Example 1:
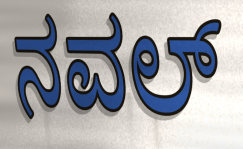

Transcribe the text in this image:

ನವಲ್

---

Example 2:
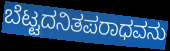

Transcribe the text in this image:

ಬೆಟ್ಟದನಿತಪರಾಧವನು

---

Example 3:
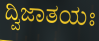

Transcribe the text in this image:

ದ್ವಿಜಾತಯಃ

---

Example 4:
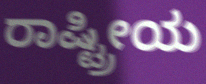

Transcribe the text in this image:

ರಾಷ್ಟ್ರೀಯ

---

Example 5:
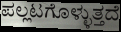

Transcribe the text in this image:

ಪಲ್ಲಟಗೊಳ್ಳುತ್ತದೆ